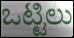
ಒಟ್ಟಿಲು